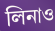
লিনাও